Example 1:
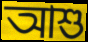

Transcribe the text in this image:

আশু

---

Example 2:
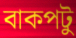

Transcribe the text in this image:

বাকপটু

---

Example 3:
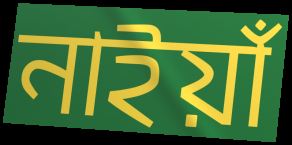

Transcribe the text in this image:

নাইয়াঁ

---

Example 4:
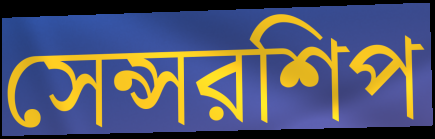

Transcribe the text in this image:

সেন্সরশিপ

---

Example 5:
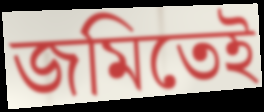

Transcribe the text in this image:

জমিতেই